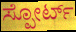
ಸ್ಪೋರ್ಟ್